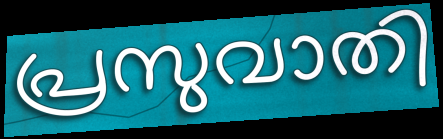
പ്രസുവാതി